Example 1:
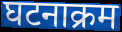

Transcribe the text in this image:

घटनाक्रम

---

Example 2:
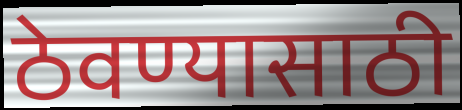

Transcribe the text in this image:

ठेवण्यासाठी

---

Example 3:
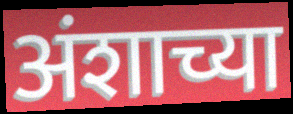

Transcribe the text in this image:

अंशाच्या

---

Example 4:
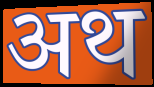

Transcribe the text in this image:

अथ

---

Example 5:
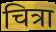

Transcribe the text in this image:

चित्रा